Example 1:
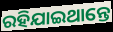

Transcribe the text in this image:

ରହିଯାଇଥାନ୍ତେ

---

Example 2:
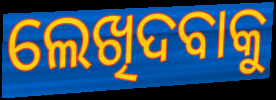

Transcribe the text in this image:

ଲେଖିଦବାକୁ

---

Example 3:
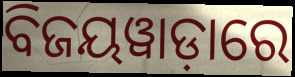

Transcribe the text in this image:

ବିଜୟୱାଡ଼ାରେ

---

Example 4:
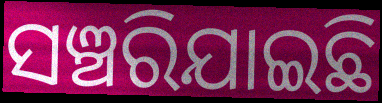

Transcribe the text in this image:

ସଞ୍ଚରିଯାଇଛି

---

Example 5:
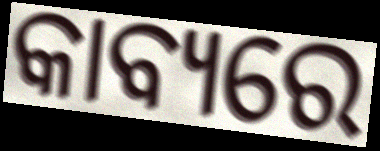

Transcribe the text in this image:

କାବ୍ଯରେ